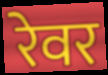
रेवर